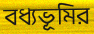
বধ্যভূমির